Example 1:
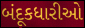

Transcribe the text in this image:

બંદૂકધારીઓ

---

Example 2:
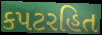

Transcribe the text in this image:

કપટરહિત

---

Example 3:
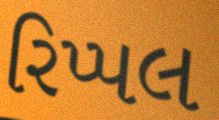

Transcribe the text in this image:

રિપ્પલ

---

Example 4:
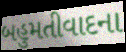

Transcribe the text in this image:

બહુમતીવાદના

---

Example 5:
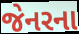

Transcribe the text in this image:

જેનરના